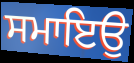
ਸਮਾਇਉ